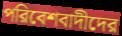
পরিবেশবাদীদের